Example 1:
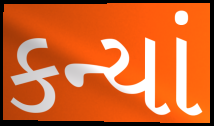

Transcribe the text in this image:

કન્યાં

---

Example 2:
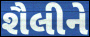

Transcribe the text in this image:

શૈલીને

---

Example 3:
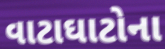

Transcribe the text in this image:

વાટાઘાટોના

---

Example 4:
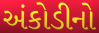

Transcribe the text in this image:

અંકોડીનો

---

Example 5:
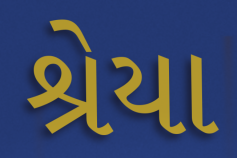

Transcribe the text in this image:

શ્રેયા